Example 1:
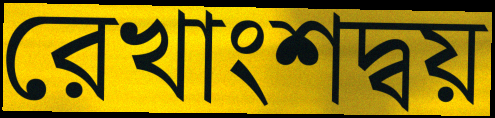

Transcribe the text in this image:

রেখাংশদ্বয়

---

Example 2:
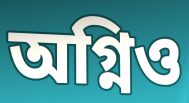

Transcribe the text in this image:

অগ্নিও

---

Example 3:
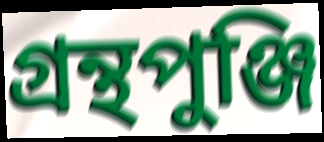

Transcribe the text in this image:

গ্রন্থপুঞ্জি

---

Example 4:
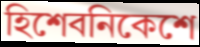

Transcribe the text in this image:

হিশেবনিকেশে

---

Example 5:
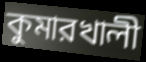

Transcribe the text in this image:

কুমারখালী